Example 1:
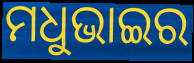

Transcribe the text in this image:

ମଧୁଭାଇର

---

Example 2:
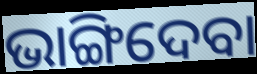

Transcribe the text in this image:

ଭାଙ୍ଗିଦେବା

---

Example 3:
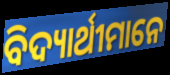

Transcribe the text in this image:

ବିଦ୍ୟାର୍ଥୀମାନେ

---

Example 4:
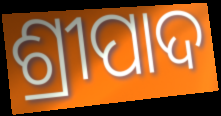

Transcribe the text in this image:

ଶ୍ରୀପାଦ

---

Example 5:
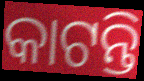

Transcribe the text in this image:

କାଟନ୍ତି